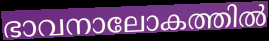
ഭാവനാലോകത്തിൽ